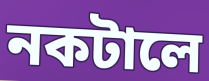
নকটালে